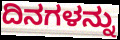
ದಿನಗಳನ್ನು